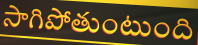
సాగిపోతుంటుంది